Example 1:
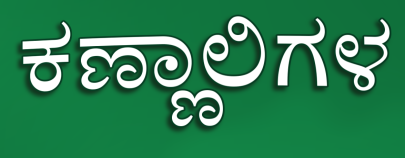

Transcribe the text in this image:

ಕಣ್ಣಾಲಿಗಳ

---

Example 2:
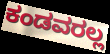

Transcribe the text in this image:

ಕಂಡವರಲ್ಲ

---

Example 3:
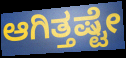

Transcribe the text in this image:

ಆಗಿತ್ತಷ್ಟೇ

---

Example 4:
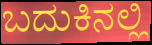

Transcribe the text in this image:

ಬದುಕಿನಲ್ಲಿ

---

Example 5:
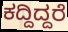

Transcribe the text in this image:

ಕದ್ದಿದ್ದರೆ